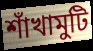
শাঁখামুটি